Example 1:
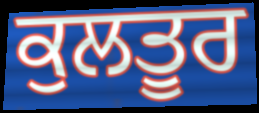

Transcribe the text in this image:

ਕੁਲਤੂਰ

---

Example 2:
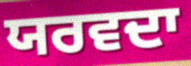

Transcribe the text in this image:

ਯਰਵਦਾ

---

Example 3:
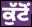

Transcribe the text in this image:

ਕੁੱਟੋਂ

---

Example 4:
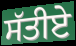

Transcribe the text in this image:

ਸੱਤੀਏ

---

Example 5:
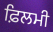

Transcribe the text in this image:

ਫ਼ਿਲਮੀ